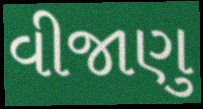
વીજાણુ